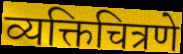
व्यक्तिचित्रणे